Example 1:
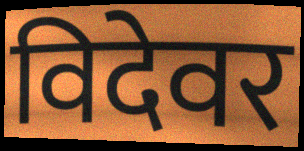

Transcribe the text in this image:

विदेवर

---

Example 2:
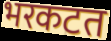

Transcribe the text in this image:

भरकटत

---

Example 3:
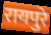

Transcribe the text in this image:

रायपुरे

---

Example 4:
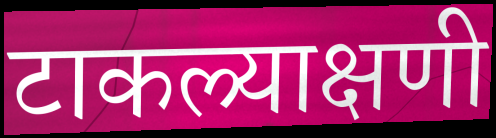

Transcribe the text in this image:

टाकल्याक्षणी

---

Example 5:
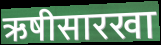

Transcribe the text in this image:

ऋषीसारखा